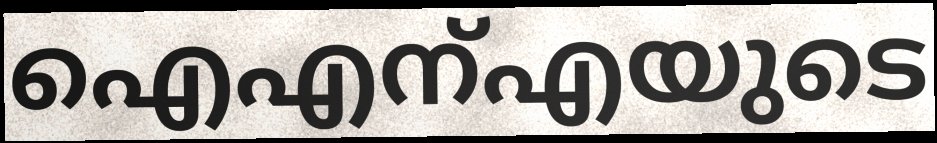
ഐഎന്എയുടെ